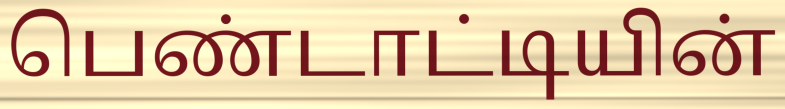
பெண்டாட்டியின்